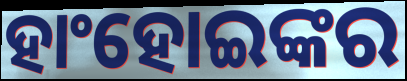
ହାଂହୋଇଙ୍କର